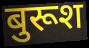
बुरूश